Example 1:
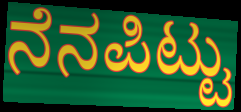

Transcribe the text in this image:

ನೆನಪಿಟ್ಟು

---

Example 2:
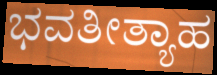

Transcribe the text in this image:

ಭವತೀತ್ಯಾಹ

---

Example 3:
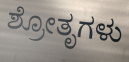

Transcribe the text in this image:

ಶ್ರೋತೃಗಳು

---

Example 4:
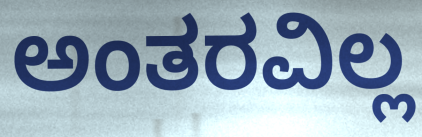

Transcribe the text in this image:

ಅಂತರವಿಲ್ಲ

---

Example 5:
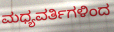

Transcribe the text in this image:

ಮಧ್ಯವರ್ತಿಗಳಿಂದ